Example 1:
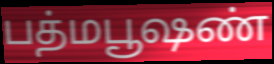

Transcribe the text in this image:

பத்மபூஷண்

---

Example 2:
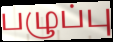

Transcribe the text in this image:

பழுப்பு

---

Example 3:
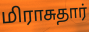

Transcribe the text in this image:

மிராசுதார்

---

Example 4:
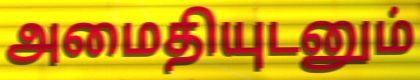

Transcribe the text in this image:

அமைதியுடனும்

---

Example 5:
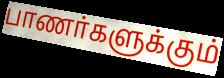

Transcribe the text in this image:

பாணர்களுக்கும்